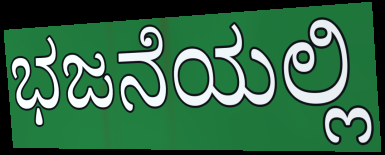
ಭಜನೆಯಲ್ಲಿ